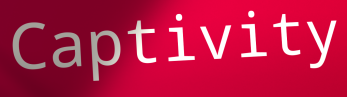
Captivity